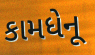
કામધેનૂ